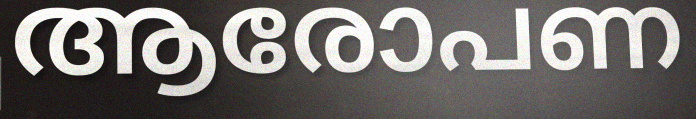
ആരോപണ